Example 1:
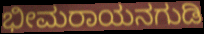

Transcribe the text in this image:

ಭೀಮರಾಯನಗುಡಿ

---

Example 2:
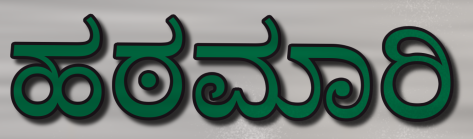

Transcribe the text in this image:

ಹಠಮಾರಿ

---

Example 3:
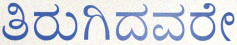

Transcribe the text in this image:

ತಿರುಗಿದವರೇ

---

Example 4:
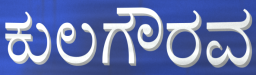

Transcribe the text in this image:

ಕುಲಗೌರವ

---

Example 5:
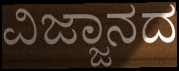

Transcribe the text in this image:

ವಿಜ್ಜಾನದ